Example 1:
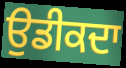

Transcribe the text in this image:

ਉਡੀਕਦਾ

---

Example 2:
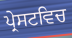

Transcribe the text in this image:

ਪ੍ਰੇਸਟਵਿਚ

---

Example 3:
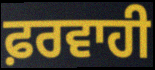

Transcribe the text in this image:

ਫ਼ਰਵਾਹੀ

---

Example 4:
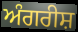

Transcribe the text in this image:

ਅੰਗਰੀਸ਼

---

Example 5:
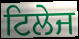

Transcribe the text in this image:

ਟਿਲੇਜ